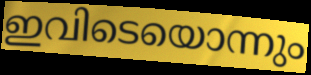
ഇവിടെയൊന്നും